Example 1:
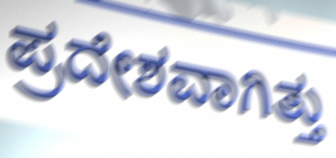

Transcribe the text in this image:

ಪ್ರದೇಶವಾಗಿತ್ತು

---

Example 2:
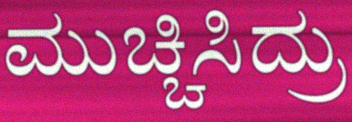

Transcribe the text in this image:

ಮುಚ್ಚಿಸಿದ್ರು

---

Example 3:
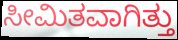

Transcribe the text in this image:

ಸೀಮಿತವಾಗಿತ್ತು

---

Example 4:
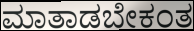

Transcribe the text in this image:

ಮಾತಾಡಬೇಕಂತ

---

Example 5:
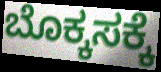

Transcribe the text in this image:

ಬೊಕ್ಕಸಕ್ಕೆ